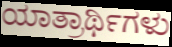
ಯಾತ್ರಾರ್ಥಿಗಳು